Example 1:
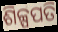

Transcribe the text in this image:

ଶିଳ୍ପପତି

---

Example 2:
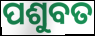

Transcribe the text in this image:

ପଶୁବତ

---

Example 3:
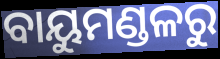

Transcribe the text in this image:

ବାୟୁମଣ୍ଡଳରୁ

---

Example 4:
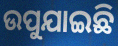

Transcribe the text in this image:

ଉପୁଯାଇଛି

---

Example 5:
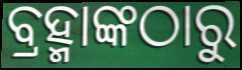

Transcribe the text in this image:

ବ୍ରହ୍ମାଙ୍କଠାରୁ